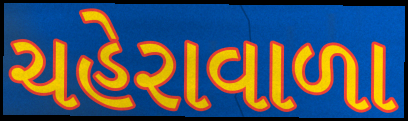
ચહેરાવાળા